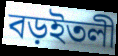
বড়ইতলী